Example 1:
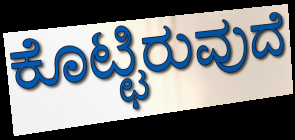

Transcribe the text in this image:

ಕೊಟ್ಟಿರುವುದೆ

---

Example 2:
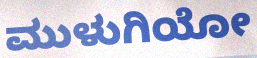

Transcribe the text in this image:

ಮುಳುಗಿಯೋ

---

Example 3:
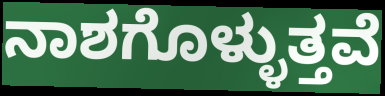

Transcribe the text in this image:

ನಾಶಗೊಳ್ಳುತ್ತವೆ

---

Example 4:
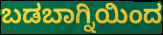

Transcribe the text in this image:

ಬಡಬಾಗ್ನಿಯಿಂದ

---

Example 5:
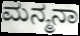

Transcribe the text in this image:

ಮನ್ಮನಾ